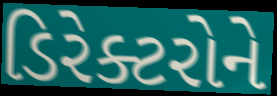
ડિરેક્ટરોને